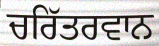
ਚਰਿੱਤਰਵਾਨ